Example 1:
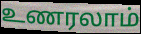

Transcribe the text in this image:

உணரலாம்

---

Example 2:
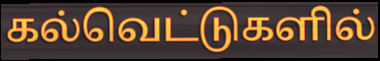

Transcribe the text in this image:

கல்வெட்டுகளில்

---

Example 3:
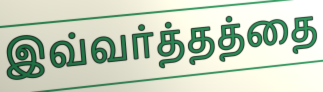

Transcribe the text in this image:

இவ்வர்த்தத்தை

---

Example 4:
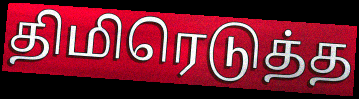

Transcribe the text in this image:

திமிரெடுத்த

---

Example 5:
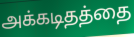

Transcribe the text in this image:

அக்கடிதத்தை